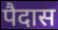
पैदास